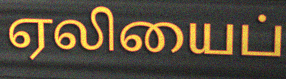
ஏலியைப்